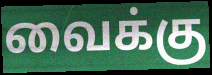
வைக்கு